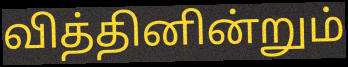
வித்தினின்றும்